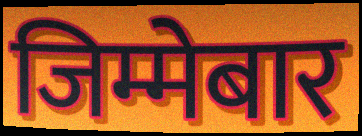
जिम्मेबार